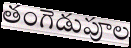
తంగెడుపూల